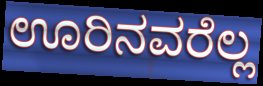
ಊರಿನವರೆಲ್ಲ